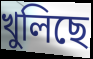
খুলিছে